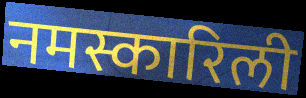
नमस्कारिली